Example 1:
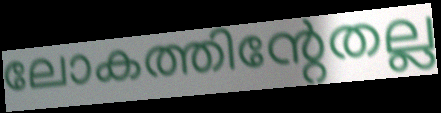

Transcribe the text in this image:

ലോകത്തിന്റേതല്ല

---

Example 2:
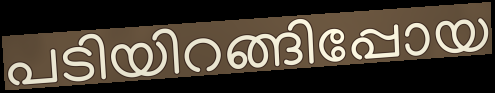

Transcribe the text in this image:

പടിയിറങ്ങിപ്പോയ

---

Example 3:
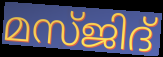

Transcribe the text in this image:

മസ്ജിദ്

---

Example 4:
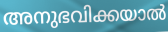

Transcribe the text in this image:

അനുഭവിക്കയാൽ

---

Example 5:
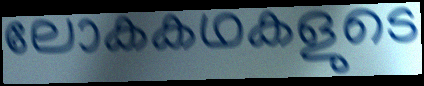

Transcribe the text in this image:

ലോകകഥകളുടെ